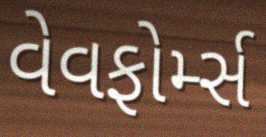
વેવફોર્મ્સ